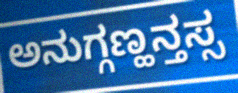
ಅನುಗ್ಗಣ್ಹನ್ತಸ್ಸ